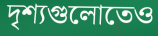
দৃশ্যগুলোতেও